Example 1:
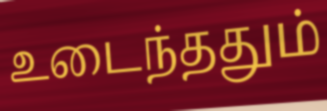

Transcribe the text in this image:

உடைந்ததும்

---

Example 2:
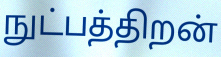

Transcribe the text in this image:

நுட்பத்திறன்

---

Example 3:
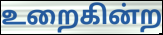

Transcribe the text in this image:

உறைகின்ற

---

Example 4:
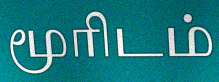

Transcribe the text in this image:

மூரிடம்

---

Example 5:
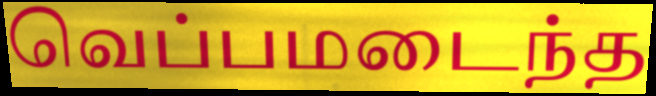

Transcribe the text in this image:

வெப்பமடைந்த